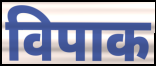
विपाक